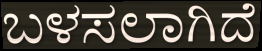
ಬಳಸಲಾಗಿದೆ